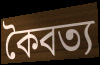
কৈবত্য